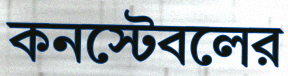
কনস্টেবলের